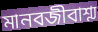
মানবজীবাশ্ম